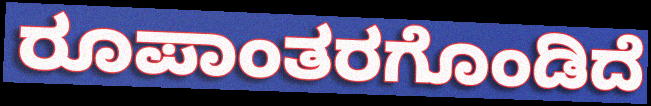
ರೂಪಾಂತರಗೊಂಡಿದೆ